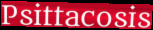
Psittacosis